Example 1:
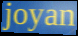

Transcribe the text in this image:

joyan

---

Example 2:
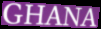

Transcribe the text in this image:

GHANA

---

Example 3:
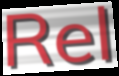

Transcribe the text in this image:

Rel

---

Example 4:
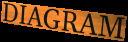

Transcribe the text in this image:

DIAGRAM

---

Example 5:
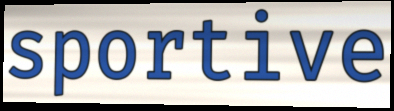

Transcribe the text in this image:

sportive